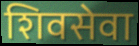
शिवसेवा